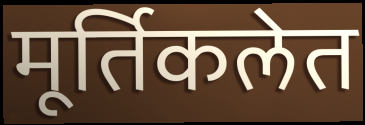
मूर्तिकलेत